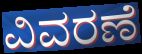
ವಿವರಣೆ